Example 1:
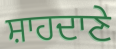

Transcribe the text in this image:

ਸ਼ਾਹਦਾਣੇ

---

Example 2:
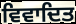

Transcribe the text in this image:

ਵਿਵਾਦਿਤ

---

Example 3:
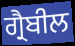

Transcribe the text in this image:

ਗ੍ਰੈਬੀਲ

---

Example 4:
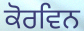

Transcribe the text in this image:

ਕੋਰਵਿਨ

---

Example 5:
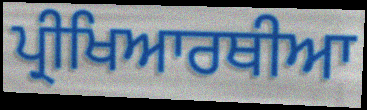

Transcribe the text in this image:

ਪ੍ਰੀਖਿਆਰਥੀਆ